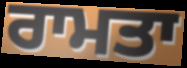
ਰਾਮਤਾ